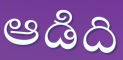
ఆడిది